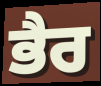
ਭੈਰ